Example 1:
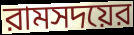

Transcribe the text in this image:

রামসদয়ের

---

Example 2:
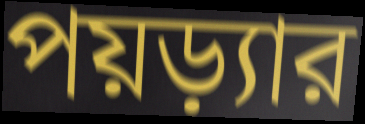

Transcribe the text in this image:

পয়ড়্যার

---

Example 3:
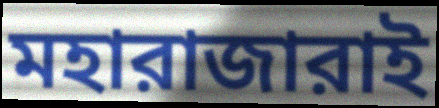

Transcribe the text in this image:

মহারাজারাই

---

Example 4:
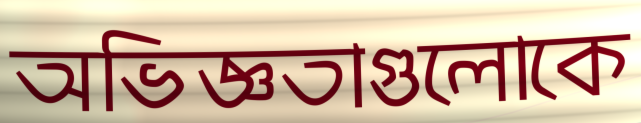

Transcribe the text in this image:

অভিজ্ঞতাগুলোকে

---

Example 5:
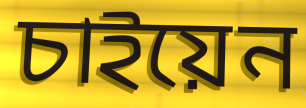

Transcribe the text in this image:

চাইয়েন